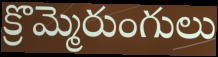
క్రొమ్మెరుంగులు